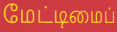
மேட்டிமைப்